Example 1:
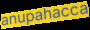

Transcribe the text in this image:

anupahacca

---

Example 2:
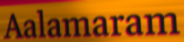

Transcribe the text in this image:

Aalamaram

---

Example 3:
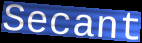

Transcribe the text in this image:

Secant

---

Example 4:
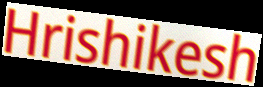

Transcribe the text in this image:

Hrishikesh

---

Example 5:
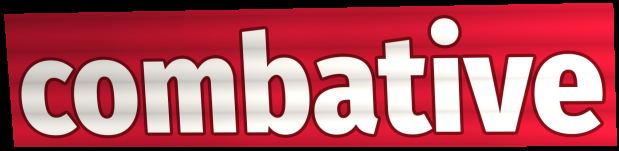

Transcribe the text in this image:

combative